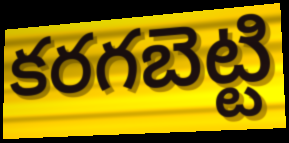
కరగబెట్టి